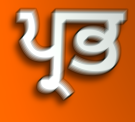
ਪ੍ਰਭ